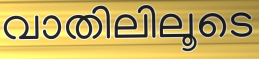
വാതിലിലൂടെ